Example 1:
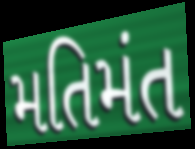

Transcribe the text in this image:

મતિમંત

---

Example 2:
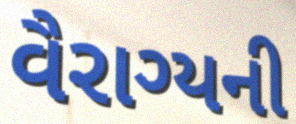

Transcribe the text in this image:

વૈરાગ્યની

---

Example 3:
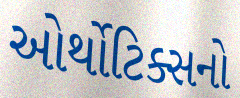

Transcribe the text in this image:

ઓર્થોટિક્સનો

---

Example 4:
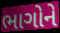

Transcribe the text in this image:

ભાગોને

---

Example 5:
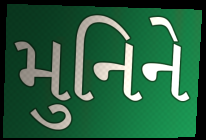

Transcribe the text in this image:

મુનિને